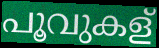
പൂവുകള്